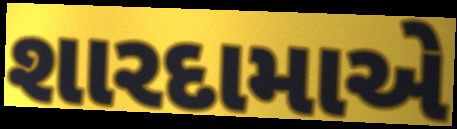
શારદામાએ